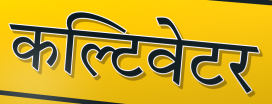
कल्टिवेटर